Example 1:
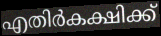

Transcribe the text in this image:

എതിർകക്ഷിക്ക്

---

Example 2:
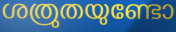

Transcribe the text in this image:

ശത്രുതയുണ്ടോ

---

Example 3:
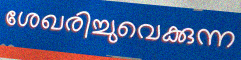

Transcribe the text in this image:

ശേഖരിച്ചുവെക്കുന്ന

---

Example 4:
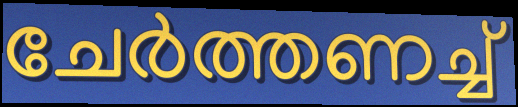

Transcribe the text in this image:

ചേർത്തണച്ച്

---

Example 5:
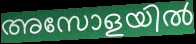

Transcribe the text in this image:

അസോളയിൽ